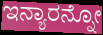
ಇನ್ಯಾರನ್ನೋ